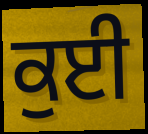
ਕੁਈ